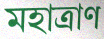
মহাত্রাণ